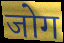
जोग